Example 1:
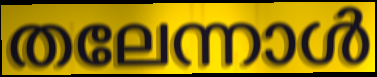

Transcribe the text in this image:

തലേന്നാൾ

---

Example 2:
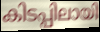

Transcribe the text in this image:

കിടപ്പിലായി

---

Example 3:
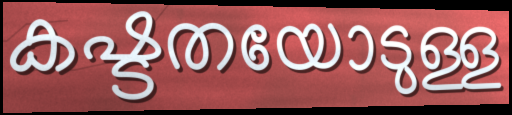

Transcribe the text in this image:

കഷ്ടതയോടുള്ള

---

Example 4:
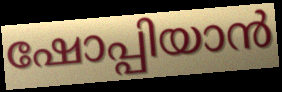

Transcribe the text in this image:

ഷോപ്പിയാൻ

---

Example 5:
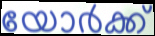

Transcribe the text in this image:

യോർക്ക്